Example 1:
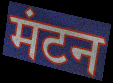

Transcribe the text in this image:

मंटन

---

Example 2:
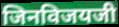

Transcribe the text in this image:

जिनविजयजी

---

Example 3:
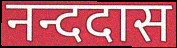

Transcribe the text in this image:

नन्ददास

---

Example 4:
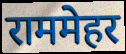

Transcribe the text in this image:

राममेहर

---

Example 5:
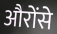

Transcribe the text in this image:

औरोंसे